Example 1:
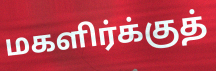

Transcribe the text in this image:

மகளிர்க்குத்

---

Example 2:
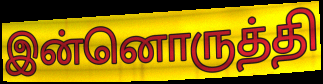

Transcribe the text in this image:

இன்னொருத்தி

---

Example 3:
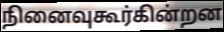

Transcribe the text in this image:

நினைவுகூர்கின்றன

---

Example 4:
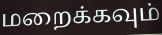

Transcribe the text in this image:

மறைக்கவும்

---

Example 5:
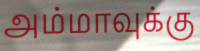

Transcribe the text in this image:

அம்மாவுக்கு